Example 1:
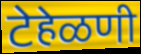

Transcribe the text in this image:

टेहेळणी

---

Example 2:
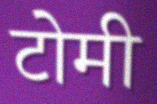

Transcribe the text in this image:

टोमी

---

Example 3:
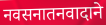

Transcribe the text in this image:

नवसनातनवादाने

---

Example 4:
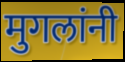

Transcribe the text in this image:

मुगलांनी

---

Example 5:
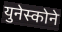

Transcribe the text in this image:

युनेस्कोने